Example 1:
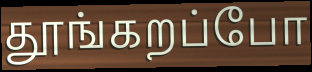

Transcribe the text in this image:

தூங்கறப்போ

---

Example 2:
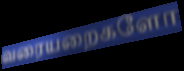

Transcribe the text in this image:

வரையறைகளோ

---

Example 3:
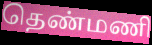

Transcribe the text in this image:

தெண்மணி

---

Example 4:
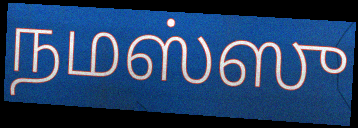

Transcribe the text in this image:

நமஸ்ஸு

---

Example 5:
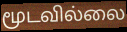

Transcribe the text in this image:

மூடவில்லை